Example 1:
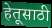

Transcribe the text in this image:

हेतूसाठी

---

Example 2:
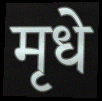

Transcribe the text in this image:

मृधे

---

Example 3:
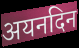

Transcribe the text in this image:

अयनदिन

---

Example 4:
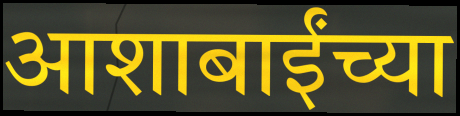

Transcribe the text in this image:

आशाबाईंच्या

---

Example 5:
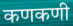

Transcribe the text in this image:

कणकणी